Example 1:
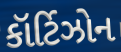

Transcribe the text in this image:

કૉર્ટિઝોન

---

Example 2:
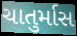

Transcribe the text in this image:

ચાતુર્માસ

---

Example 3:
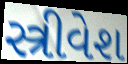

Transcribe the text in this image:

સ્ત્રીવેશ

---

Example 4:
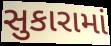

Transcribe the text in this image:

સુકારામાં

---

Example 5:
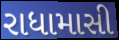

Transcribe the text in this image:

રાધામાસી